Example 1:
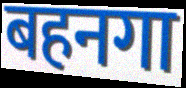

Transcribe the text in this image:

बहनगा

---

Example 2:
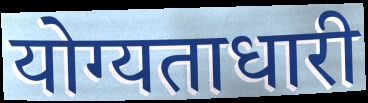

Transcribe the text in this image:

योग्यताधारी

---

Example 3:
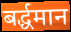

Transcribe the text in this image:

बर्द्धमान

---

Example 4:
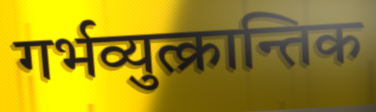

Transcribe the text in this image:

गर्भव्युत्क्रान्तिक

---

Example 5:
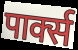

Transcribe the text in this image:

पार्क्‍स